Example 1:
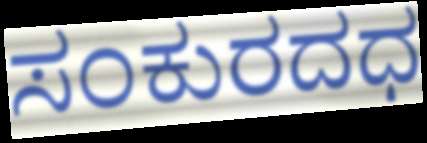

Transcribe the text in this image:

ಸಂಕುರದಧ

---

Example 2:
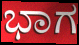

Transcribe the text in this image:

ಭಾಗ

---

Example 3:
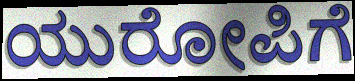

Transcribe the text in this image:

ಯುರೋಪಿಗೆ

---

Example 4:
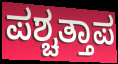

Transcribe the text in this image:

ಪಶ್ಚತ್ತಾಪ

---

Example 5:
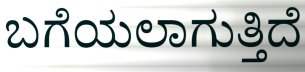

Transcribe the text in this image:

ಬಗೆಯಲಾಗುತ್ತಿದೆ